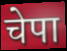
चेपा